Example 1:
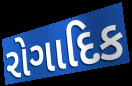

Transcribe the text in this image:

રોગાદિક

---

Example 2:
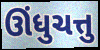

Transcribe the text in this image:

ઊંધુચત્તુ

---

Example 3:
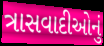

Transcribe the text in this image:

ત્રાસવાદીઓનું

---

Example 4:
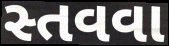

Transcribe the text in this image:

સ્તવવા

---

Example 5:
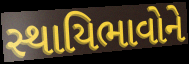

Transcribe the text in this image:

સ્થાયિભાવોને